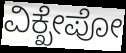
ವಿಕ್ಖೇಪೋ